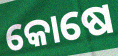
କୋଷେ